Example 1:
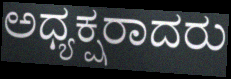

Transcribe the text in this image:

ಅಧ್ಯಕ್ಷರಾದರು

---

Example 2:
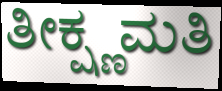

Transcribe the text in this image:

ತೀಕ್ಷ್ಣಮತಿ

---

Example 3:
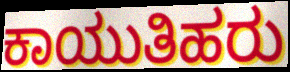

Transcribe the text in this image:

ಕಾಯುತಿಹರು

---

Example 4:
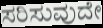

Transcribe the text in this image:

ಸರಿಸುವುದೇ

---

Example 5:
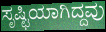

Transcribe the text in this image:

ಸೃಷ್ಟಿಯಾಗಿದ್ದವು